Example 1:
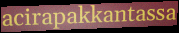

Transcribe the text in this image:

acirapakkantassa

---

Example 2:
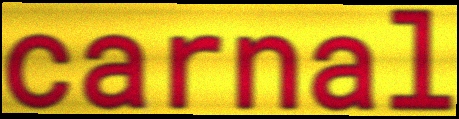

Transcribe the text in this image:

carnal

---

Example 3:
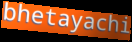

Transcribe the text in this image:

bhetayachi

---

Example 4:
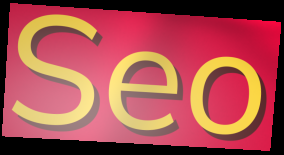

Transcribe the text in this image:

Seo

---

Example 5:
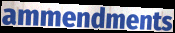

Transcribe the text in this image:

ammendments